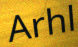
Arhl